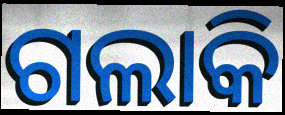
ଗଲାକି